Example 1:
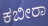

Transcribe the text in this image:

ಕಬೀರಾ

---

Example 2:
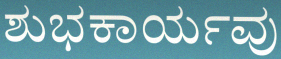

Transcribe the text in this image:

ಶುಭಕಾರ್ಯವು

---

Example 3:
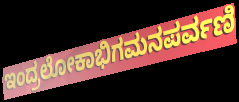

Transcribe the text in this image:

ಇಂದ್ರಲೋಕಾಭಿಗಮನಪರ್ವಣಿ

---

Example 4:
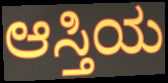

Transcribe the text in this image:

ಆಸ್ತಿಯ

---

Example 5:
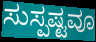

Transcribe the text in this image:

ಸುಸ್ಪಷ್ಟವೂ